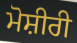
ਮੋਸ਼ੀਰੀ